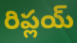
రిప్లయ్